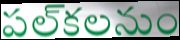
పల్‌కలనుం